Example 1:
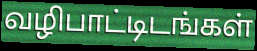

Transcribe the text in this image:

வழிபாட்டிடங்கள்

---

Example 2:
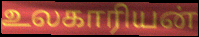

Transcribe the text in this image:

உலகாரியன்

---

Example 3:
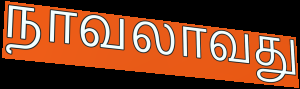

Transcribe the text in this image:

நாவலாவது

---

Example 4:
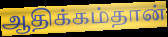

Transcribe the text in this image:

ஆதிக்கம்தான்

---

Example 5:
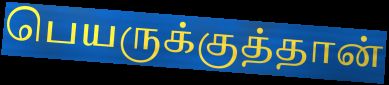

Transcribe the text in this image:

பெயருக்குத்தான்